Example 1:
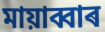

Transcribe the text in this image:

মায়াব্বাৰ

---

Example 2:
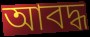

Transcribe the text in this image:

আবদ্ধ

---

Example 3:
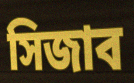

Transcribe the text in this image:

সিজাব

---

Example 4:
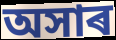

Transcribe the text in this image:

অসাৰ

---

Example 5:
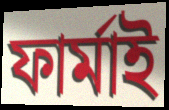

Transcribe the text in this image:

ফাৰ্মাই